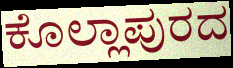
ಕೊಲ್ಲಾಪುರದ